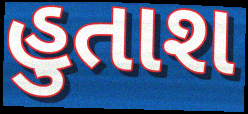
હુતાશ